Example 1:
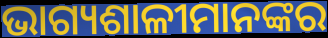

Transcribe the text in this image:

ଭାଗ୍ୟଶାଳୀମାନଙ୍କର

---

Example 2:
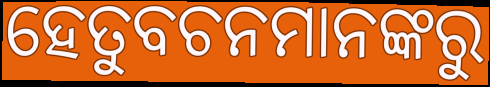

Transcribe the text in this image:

ହେତୁବଚନମାନଙ୍କରୁ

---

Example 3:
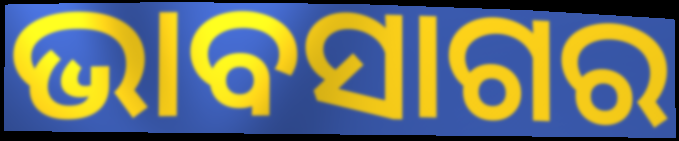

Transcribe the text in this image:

ଭାବସାଗର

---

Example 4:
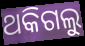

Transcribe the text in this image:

ଥକିଗଲୁ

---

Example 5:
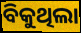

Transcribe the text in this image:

ବିକୁଥିଲା